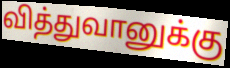
வித்துவானுக்கு